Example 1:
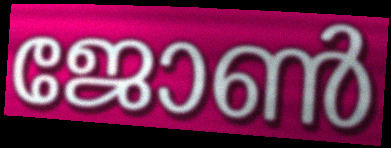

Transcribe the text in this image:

ജോൺ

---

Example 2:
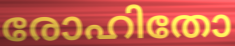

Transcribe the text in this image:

രോഹിതോ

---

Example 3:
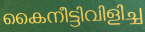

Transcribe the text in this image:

കൈനീട്ടിവിളിച്ച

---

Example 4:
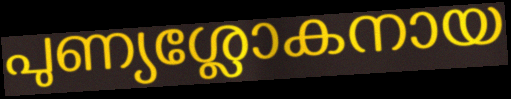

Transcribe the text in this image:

പുണ്യശ്ലോകനായ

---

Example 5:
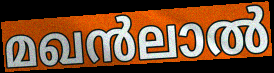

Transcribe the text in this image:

മഖൻലാൽ